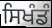
ਸਿਖੰਡੰ